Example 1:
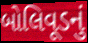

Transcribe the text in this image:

બોલિવૂડનું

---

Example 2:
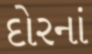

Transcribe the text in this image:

દોરનાં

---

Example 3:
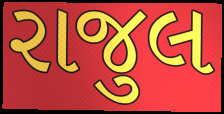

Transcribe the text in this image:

રાજુલ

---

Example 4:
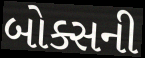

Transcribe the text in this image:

બોક્સની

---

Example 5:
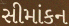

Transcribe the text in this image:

સીમાંકન